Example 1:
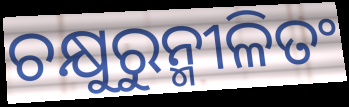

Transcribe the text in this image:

ଚକ୍ଷୁରୁନ୍ମୀଳିତଂ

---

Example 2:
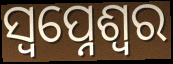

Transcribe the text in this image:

ସ୍ଵପ୍ନେଶ୍ଵର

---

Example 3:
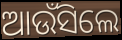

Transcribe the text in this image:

ଆଉଁସିଲେ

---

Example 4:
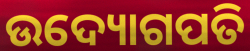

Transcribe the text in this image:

ଉଦ୍ୟୋଗପତି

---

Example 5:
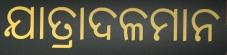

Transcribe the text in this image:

ଯାତ୍ରାଦଳମାନ